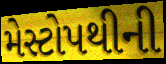
મેસ્ટોપથીની